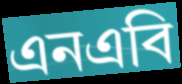
এনএবি